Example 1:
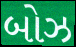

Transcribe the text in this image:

બોઝ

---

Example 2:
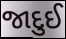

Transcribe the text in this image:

જાદુઈ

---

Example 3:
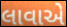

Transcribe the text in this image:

લાવાએ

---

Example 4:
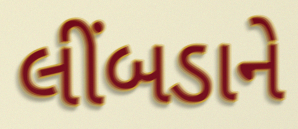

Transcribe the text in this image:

લીંબડાને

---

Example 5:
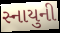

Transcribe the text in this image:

સ્નાયુની